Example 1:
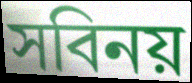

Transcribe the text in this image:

সবিনয়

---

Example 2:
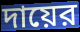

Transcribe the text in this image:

দায়ের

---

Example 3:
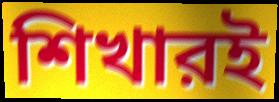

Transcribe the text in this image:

শিখারই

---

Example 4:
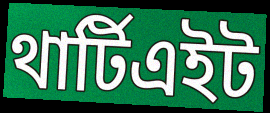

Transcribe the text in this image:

থার্টিএইট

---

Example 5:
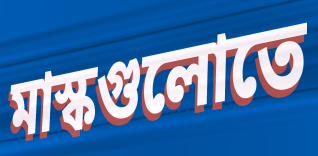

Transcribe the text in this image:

মাস্কগুলোতে